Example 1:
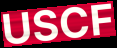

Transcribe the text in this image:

USCF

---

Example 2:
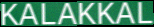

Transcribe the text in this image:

KALAKKAL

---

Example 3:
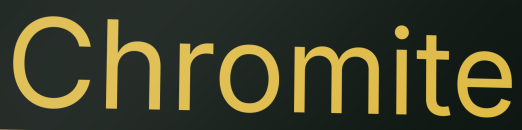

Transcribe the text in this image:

Chromite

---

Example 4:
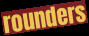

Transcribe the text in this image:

rounders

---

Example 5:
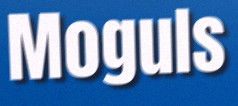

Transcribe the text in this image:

Moguls